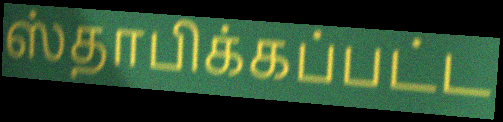
ஸ்தாபிக்கப்பட்ட